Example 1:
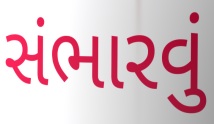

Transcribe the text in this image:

સંભારવું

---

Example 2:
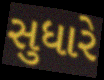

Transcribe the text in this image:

સુધારે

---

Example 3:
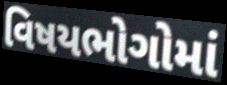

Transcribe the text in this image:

વિષયભોગોમાં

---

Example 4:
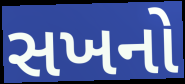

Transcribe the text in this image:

સખનો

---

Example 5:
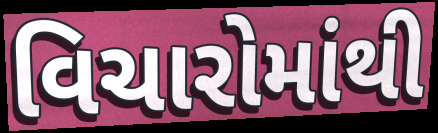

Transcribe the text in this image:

વિચારોમાંથી